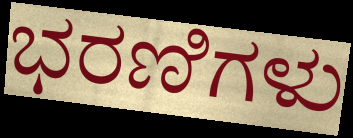
ಭರಣಿಗಳು